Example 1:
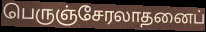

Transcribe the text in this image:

பெருஞ்சேரலாதனைப்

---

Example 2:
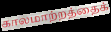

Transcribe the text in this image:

காலமாற்றத்தைக்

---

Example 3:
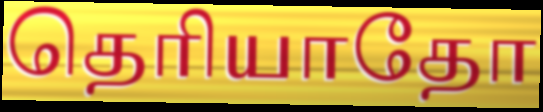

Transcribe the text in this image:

தெரியாதோ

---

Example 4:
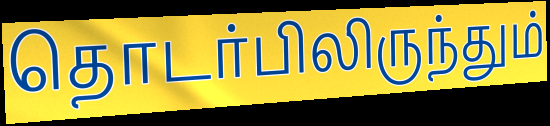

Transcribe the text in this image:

தொடர்பிலிருந்தும்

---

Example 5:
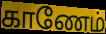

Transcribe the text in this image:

காணேம்